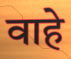
वाहे